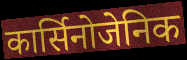
कार्सिनोजेनिक